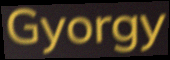
Gyorgy